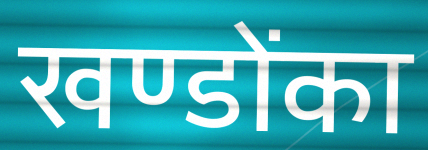
खण्डोंका